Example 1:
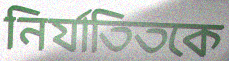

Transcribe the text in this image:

নির্যাতিতকে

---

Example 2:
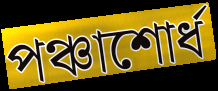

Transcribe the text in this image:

পঞ্চাশোর্ধ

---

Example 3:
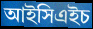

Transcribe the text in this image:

আইসিএইচ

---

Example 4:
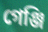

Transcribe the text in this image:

গেঞ্জি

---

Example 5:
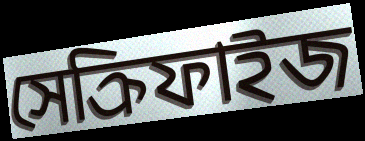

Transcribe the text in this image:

সেক্রিফাইজ